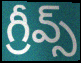
గ్రీవ్స్